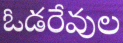
ఓడరేవుల